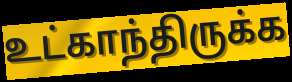
உட்காந்திருக்க